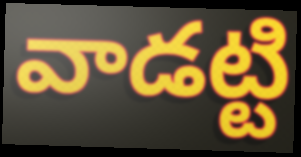
వాడట్టి